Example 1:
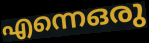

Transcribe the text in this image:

എന്നെഒരു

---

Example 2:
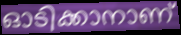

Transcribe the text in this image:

ഓടിക്കാനാണ്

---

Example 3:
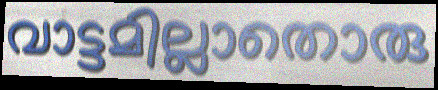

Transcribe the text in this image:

വാട്ടമില്ലാതൊരു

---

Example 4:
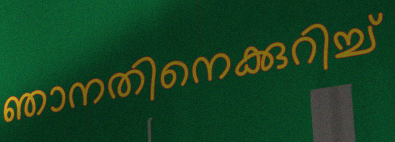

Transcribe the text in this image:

ഞാനതിനെക്കുറിച്ച്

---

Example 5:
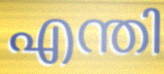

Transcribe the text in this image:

എന്തി